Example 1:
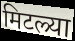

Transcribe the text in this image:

मिटल्या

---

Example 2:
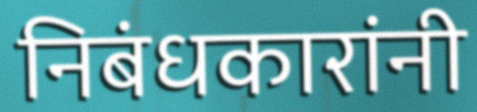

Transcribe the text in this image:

निबंधकारांनी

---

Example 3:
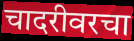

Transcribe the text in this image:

चादरीवरचा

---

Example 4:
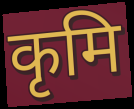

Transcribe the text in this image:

कृमि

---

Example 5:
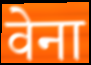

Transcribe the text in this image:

वेना